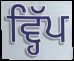
ਵ੍ਹਿੱਪ